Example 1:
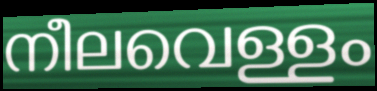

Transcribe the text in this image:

നീലവെള്ളം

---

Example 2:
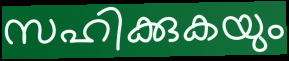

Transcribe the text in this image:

സഹിക്കുകയും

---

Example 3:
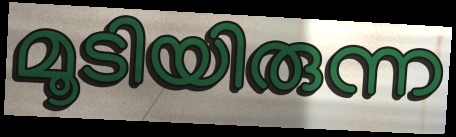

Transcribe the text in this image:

മൂടിയിരുന്ന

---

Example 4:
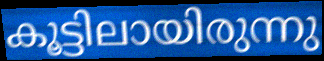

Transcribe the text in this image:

കൂട്ടിലായിരുന്നു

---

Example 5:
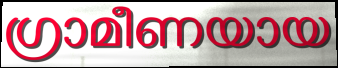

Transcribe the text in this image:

ഗ്രാമീണയായ